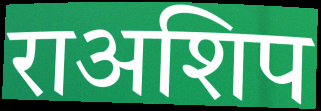
राअशिप